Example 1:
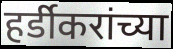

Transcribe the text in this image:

हर्डीकरांच्या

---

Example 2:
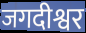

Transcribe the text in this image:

जगदीश्वर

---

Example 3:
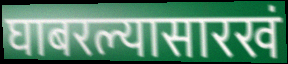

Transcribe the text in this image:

घाबरल्यासारखं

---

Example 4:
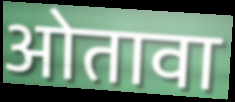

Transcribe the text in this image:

ओतावा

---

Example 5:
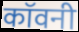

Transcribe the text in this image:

कॉवनी